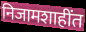
निजामशाहींत